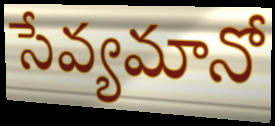
సేవ్యమానో